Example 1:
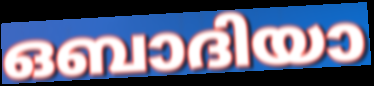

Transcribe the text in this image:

ഒബാദിയാ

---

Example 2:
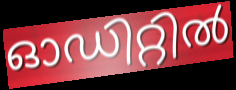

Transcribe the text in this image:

ഓഡിറ്റിൽ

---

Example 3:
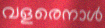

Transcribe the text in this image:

വളരെനാൾ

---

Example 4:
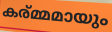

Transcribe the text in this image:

കര്മ്മമായും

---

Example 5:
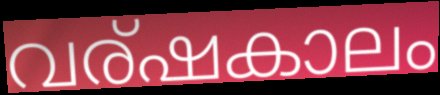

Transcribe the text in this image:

വര്ഷകാലം